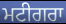
ਮਟੀਗਰਾ